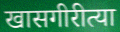
खासगीरीत्या